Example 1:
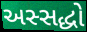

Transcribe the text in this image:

અસ્સદ્ધો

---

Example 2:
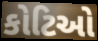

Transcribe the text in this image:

કોટિઓ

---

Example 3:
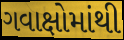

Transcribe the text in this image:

ગવાક્ષોમાંથી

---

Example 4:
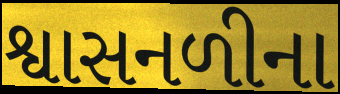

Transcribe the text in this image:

શ્વાસનળીના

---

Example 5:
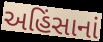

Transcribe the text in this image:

અહિંસાનાં